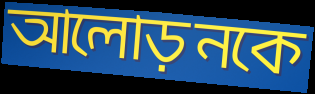
আলোড়নকে